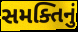
સમક્તિનું